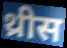
थ्रीस